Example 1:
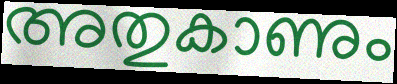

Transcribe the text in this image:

അതുകാണും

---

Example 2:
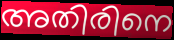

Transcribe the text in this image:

അതിരിനെ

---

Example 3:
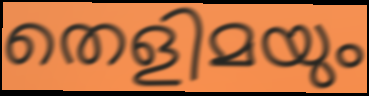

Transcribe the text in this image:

തെളിമയും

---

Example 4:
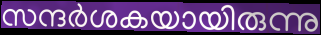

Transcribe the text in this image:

സന്ദർശകയായിരുന്നു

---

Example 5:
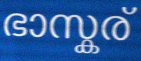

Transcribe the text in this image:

ഭാസ്കര്